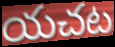
యచట